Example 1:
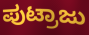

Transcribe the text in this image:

ಪುಟ್ರಾಜು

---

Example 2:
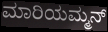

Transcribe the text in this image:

ಮಾರಿಯಮ್ಮನ್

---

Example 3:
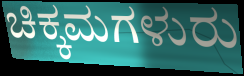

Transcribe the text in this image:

ಚಿಕ್ಕಮಗಳುರು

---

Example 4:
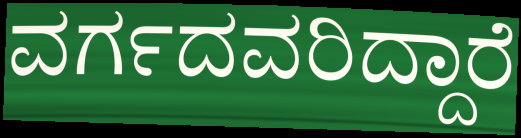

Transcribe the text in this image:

ವರ್ಗದವರಿದ್ದಾರೆ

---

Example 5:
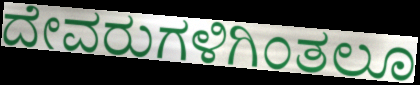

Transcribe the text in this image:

ದೇವರುಗಳಿಗಿಂತಲೂ